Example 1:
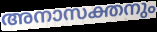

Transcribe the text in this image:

അനാസക്തനും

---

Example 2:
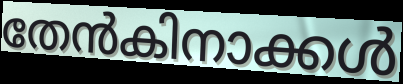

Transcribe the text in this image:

തേൻകിനാക്കൾ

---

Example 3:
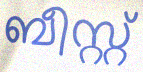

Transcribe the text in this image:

ബീസ്റ്റ്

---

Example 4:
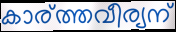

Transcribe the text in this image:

കാര്ത്തവീര്യന്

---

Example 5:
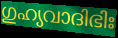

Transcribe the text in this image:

ഗുഹ്യവാദിഭിഃ